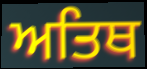
ਅਤਿਥ